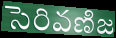
సెరివణిజ